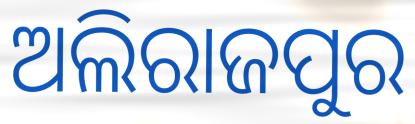
ଅଲିରାଜପୁର